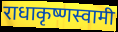
राधाकृष्णस्वामी